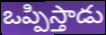
ఒప్పిస్తాడు